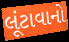
લૂંટાવાનો